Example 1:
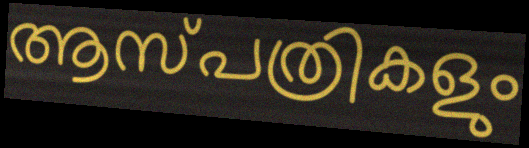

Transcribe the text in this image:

ആസ്പത്രികളും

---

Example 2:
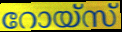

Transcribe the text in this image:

റോയ്സ്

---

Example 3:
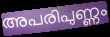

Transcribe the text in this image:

അപരിപുണ്ണം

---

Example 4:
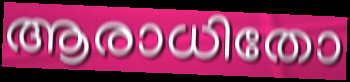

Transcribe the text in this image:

ആരാധിതോ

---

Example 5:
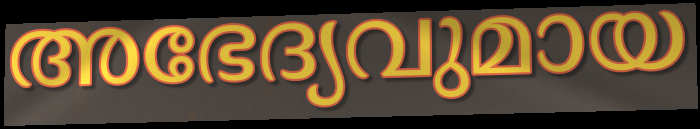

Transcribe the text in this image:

അഭേദ്യവുമായ